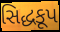
સિદ્ધકૂપ